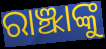
ରାଞ୍ଝାଙ୍କୁ